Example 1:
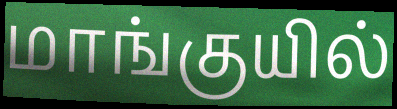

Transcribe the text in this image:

மாங்குயில்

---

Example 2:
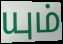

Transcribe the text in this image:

யும்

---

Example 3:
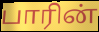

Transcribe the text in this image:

பாரின்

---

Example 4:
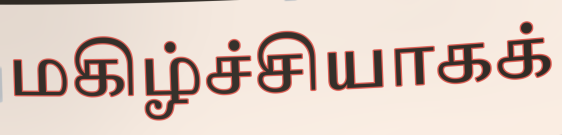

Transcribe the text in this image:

மகிழ்ச்சியாகக்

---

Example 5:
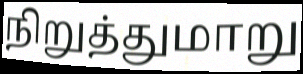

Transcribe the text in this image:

நிறுத்துமாறு